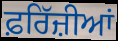
ਫ਼ਰਿੱਜ਼ੀਆਂ